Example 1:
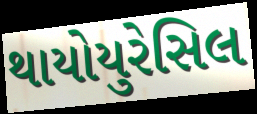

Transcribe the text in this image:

થાયોયુરેસિલ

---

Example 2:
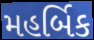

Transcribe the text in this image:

મહર્બિક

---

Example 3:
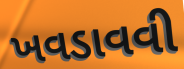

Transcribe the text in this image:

ખવડાવવી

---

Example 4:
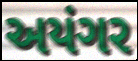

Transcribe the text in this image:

અયંગર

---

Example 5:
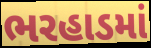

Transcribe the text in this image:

ભરહાડમાં